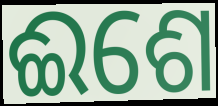
ଈଶେ